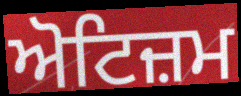
ਅੋਟਿਜ਼ਮ